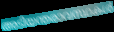
അടിയന്തരാവസ്ഥകൾ